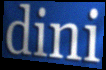
dini